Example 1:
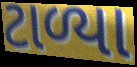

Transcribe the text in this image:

ટાળ્યા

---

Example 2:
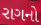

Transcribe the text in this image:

રાગનો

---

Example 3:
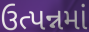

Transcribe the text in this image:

ઉત્પન્નમાં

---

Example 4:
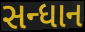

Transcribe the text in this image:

સન્ધાન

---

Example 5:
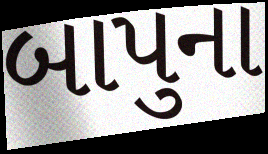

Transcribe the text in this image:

બાપુના